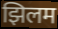
झिलम